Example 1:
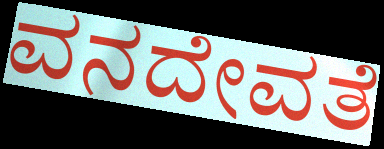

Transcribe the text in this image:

ವನದೇವತೆ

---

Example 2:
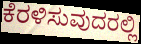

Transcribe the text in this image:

ಕೆರಳಿಸುವುದರಲ್ಲಿ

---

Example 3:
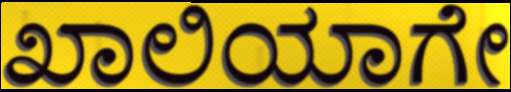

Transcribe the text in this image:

ಖಾಲಿಯಾಗೇ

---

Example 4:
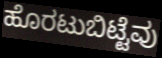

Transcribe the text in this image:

ಹೊರಟುಬಿಟ್ಟೆವು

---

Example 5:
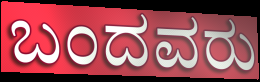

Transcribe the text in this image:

ಬಂದವರು